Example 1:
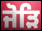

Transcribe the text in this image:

ਜੋੜਿ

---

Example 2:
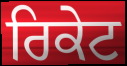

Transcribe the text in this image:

ਰਿਕੇਟ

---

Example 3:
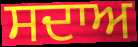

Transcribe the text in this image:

ਸਦਾਅ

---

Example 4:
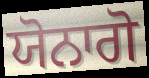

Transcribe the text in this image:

ਯੋਨਾਗੋ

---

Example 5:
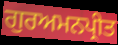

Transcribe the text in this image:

ਗੁਰਅਮਨਪ੍ਰੀਤ